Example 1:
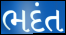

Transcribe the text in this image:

ભદંત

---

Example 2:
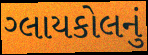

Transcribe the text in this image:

ગ્લાયકોલનું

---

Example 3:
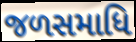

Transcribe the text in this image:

જળસમાધિ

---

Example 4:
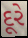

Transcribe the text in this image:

દૂરે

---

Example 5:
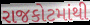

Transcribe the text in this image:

રાજકોટમાંથી